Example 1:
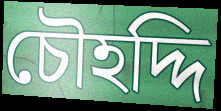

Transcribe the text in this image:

চৌহদ্দি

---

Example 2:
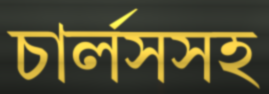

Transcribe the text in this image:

চার্লসসহ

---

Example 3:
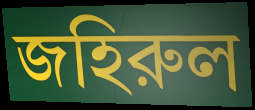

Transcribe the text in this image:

জহিরুল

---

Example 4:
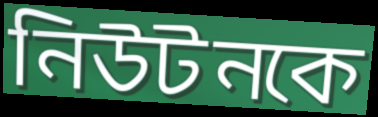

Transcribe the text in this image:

নিউটনকে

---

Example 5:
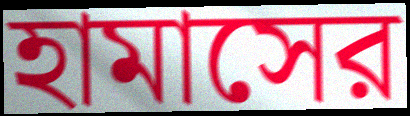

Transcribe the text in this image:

হামাসের